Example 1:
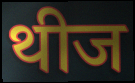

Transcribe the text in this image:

थीज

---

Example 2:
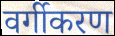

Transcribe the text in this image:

वर्गीकरण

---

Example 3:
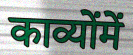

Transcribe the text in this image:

काव्योंमें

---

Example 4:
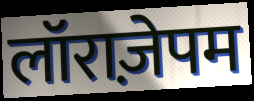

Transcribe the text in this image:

लॉराज़ेपम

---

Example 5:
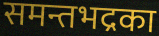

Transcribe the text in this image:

समन्तभद्रका